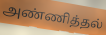
அண்ணித்தல்